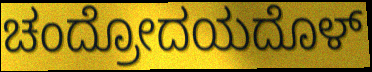
ಚಂದ್ರೋದಯದೊಳ್